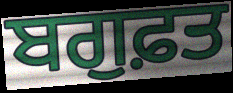
ਬਗੁਫ਼ਤ